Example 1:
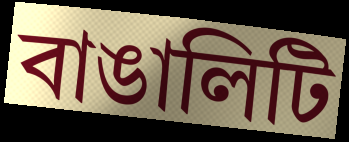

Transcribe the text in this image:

বাঙালিটি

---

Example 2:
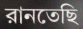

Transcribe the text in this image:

রানতেছি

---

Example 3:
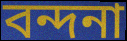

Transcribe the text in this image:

বন্দনা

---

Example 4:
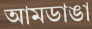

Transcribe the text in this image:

আমডাঙা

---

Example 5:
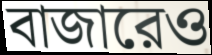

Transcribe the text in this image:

বাজারেও